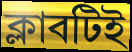
ক্লাবটিই